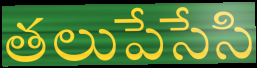
తలుపేసేసి